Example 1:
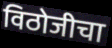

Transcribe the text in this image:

विठोजीचा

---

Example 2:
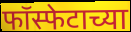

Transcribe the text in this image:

फॉस्फेटाच्या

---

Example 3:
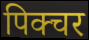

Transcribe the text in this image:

पिक्चर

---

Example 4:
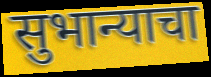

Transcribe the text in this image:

सुभान्याचा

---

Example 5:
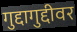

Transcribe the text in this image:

गुद्दागुद्दीवर